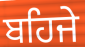
ਬਹਿਜੇ